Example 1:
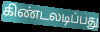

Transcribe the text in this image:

கிண்டலடிப்பது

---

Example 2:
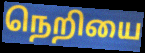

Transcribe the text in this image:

நெறியை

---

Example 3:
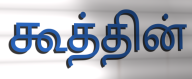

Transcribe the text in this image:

கூத்தின்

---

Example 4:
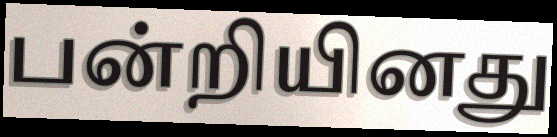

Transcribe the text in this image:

பன்றியினது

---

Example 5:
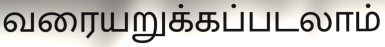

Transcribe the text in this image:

வரையறுக்கப்படலாம்